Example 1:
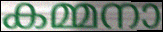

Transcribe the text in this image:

കമ്മനാ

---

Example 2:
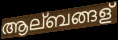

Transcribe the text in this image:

ആല്ബങ്ങള്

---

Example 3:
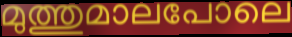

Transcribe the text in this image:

മുത്തുമാലപോലെ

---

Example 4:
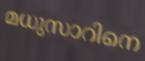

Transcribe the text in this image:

മധുസാറിനെ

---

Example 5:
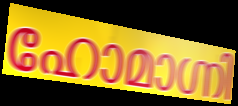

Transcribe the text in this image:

ഹോമാഗ്നി